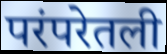
परंपरेतली